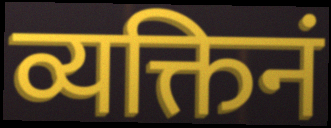
व्यक्तिनं